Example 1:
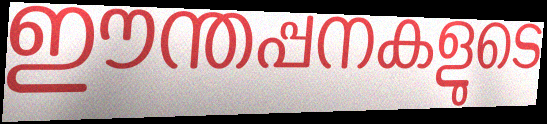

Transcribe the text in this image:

ഈന്തപ്പനകളുടെ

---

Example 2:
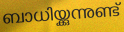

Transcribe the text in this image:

ബാധിയ്ക്കുന്നുണ്ട്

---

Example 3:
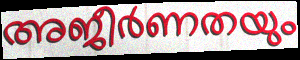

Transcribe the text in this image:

അജീർണതയും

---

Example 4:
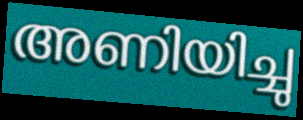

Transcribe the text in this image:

അണിയിച്ചു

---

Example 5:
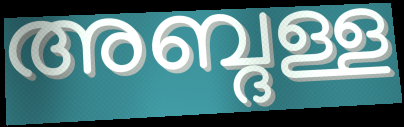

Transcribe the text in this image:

അബ്ദള്ള